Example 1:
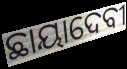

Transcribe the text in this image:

ଛାୟାଦେବୀ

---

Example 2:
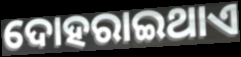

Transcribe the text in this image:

ଦୋହରାଇଥାଏ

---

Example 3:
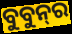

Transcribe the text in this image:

ବୁବୁନ୍‌ର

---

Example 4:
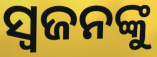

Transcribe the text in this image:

ସ୍ଵଜନଙ୍କୁ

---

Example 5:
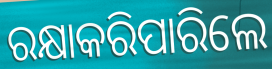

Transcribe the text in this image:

ରକ୍ଷାକରିପାରିଲେ